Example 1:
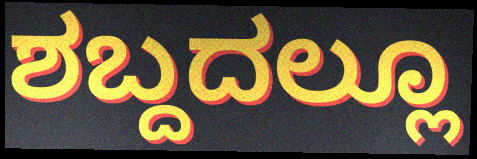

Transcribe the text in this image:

ಶಬ್ದದಲ್ಲೂ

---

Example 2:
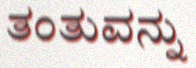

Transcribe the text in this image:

ತಂತುವನ್ನು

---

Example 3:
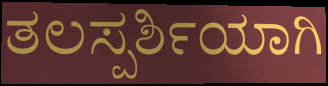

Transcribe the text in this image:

ತಲಸ್ಪರ್ಶಿಯಾಗಿ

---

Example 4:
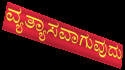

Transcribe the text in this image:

ವ್ಯತ್ಯಾಸವಾಗುವುದು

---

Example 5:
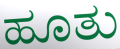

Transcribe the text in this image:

ಹೂತು